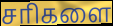
சரிகளை